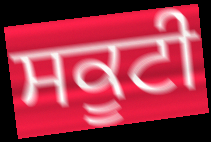
ਸਕੂਟੀ